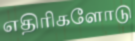
எதிரிகளோடு